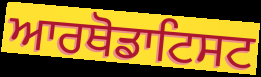
ਆਰਥੋਡਾਟਿਸਟ